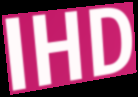
IHD